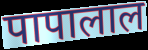
पापालाल